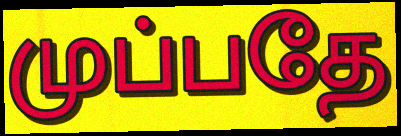
முப்பதே